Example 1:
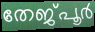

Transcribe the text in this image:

തേജ്പൂർ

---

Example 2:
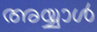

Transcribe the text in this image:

അയ്യാൾ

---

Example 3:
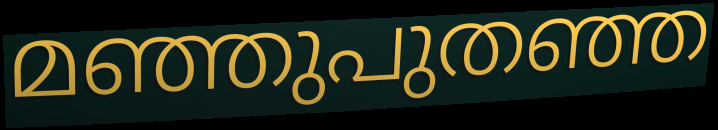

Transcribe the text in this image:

മഞ്ഞുപുതഞ്ഞ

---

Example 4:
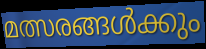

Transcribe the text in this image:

മത്സരങ്ങൾക്കും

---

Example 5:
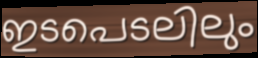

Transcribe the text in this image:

ഇടപെടലിലും